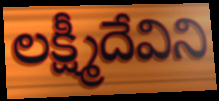
లక్ష్మీదేవిని